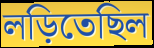
লড়িতেছিল